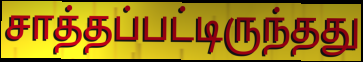
சாத்தப்பட்டிருந்தது